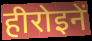
हीरोइनें